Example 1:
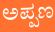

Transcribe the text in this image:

ಅಪ್ಪಣ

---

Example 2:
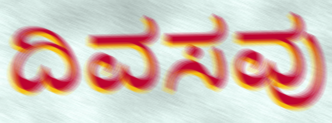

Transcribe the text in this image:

ದಿವಸವು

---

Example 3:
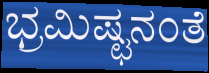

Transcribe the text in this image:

ಭ್ರಮಿಷ್ಟನಂತೆ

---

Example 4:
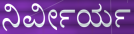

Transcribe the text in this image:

ನಿರ್ವೀರ್ಯ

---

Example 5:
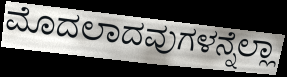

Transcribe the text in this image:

ಮೊದಲಾದವುಗಳನ್ನೆಲ್ಲಾ